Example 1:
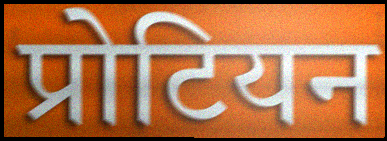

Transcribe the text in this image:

प्रोटियन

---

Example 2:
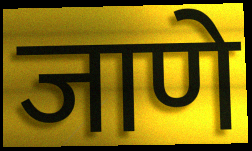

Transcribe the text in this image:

जाणे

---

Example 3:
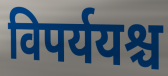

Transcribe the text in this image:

विपर्ययश्च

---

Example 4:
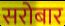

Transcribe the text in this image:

सरोबार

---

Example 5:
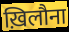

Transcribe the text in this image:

ख़िलौना